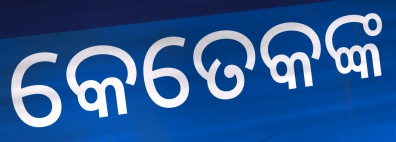
କେତେକଙ୍କ